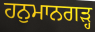
ਹਨੁਮਾਨਗੜ੍ਹ